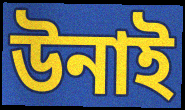
উনাই